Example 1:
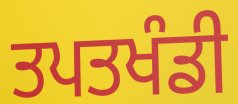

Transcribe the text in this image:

ਤਪਤਖੰਡੀ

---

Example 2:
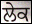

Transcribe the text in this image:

ਲੇਕ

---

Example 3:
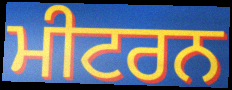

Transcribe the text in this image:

ਮੀਟਰਨ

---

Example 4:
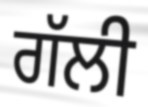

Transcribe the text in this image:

ਗੱਲੀ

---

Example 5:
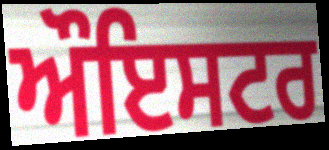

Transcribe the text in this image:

ਔਇਸਟਰ